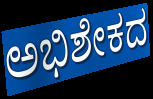
ಅಭಿಶೇಕದ